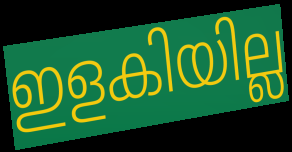
ഇളകിയില്ല